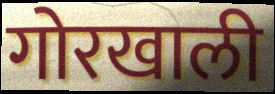
गोरखाली